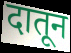
दातून